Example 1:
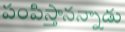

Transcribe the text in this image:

పంపిస్తానన్నాడు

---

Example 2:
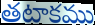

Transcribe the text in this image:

తటాకము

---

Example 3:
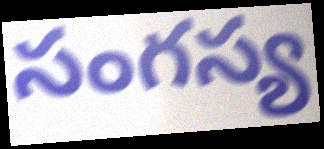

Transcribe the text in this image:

సంగస్య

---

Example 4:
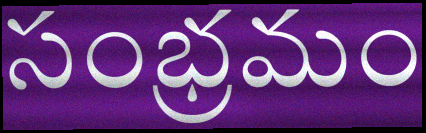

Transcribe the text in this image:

సంభ్రమం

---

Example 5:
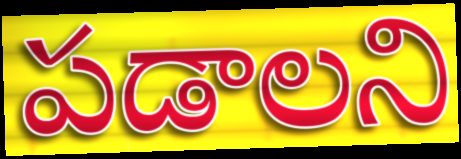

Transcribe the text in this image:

పడాలని